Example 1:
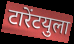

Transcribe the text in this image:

टारेंटयुला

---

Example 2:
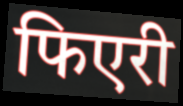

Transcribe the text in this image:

फिएरी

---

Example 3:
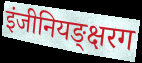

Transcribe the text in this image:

इंजीनियङ्क्षरग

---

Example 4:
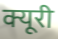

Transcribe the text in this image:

क्यूरी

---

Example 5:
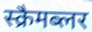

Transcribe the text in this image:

स्क्रैमब्लर